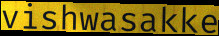
vishwasakke